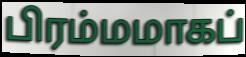
பிரம்மமாகப்